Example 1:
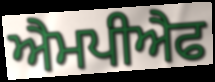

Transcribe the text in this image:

ਐਮਪੀਐਫ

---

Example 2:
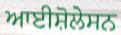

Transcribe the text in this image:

ਆਈਸ਼ੋਲੇਸਨ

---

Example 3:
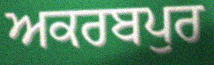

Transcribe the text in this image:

ਅਕਰਬਪੁਰ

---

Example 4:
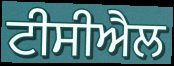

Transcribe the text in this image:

ਟੀਸੀਐਲ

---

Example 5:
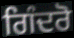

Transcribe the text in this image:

ਗਿੰਦਰੋ